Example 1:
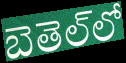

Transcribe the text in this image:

బెతెల్‌లో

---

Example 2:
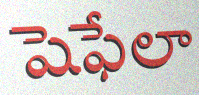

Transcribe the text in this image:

షెఫేలా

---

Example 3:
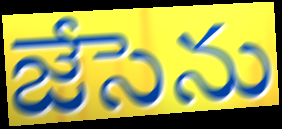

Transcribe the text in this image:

జేసెను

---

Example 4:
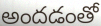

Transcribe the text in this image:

అందడంతో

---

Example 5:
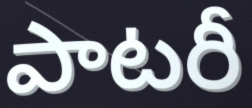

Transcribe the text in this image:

పాటరీ